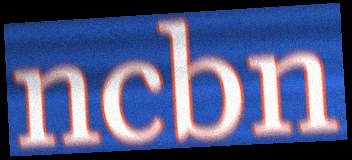
ncbn